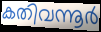
കതിവന്നൂർ